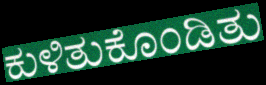
ಕುಳಿತುಕೊಂಡಿತು